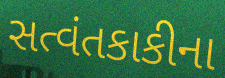
સત્વંતકાકીના